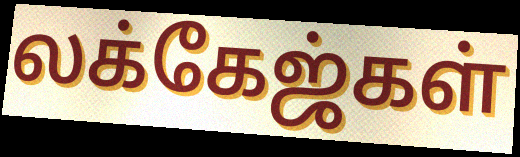
லக்கேஜ்கள்